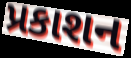
પ્રકાશન